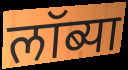
लॉब्या